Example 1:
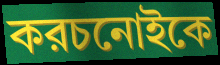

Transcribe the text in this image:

করচনোইকে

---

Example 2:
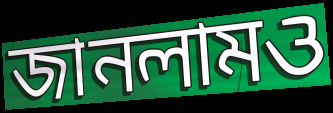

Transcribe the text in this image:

জানলামও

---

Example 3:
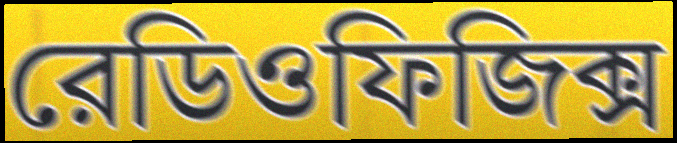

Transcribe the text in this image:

রেডিওফিজিক্স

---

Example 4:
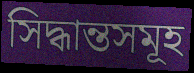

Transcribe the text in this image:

সিদ্ধান্তসমূহ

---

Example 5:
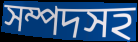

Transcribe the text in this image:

সম্পদসহ